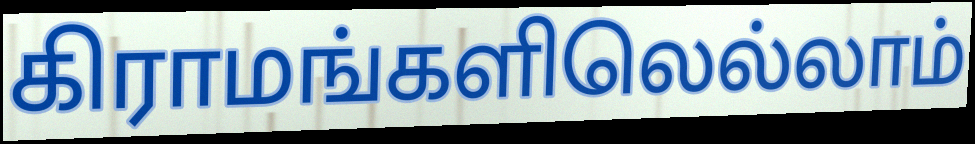
கிராமங்களிலெல்லாம்